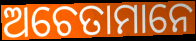
ଅଚେତାମାନେ